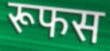
रूफस